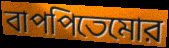
বাপপিতেমোর